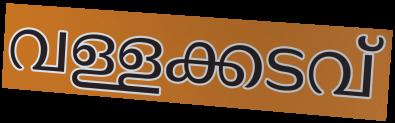
വള്ളക്കടവ്